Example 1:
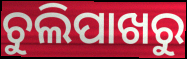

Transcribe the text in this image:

ଚୁଲିପାଖରୁ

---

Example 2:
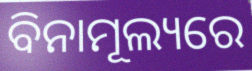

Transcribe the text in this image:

ବିନାମୂଲ୍ୟରେ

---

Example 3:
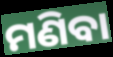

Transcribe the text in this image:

ମଣିବା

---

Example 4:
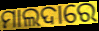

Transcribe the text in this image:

ମାଲଦାରେ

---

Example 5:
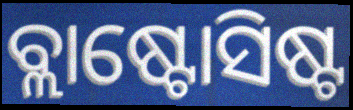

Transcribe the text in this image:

ବ୍ଲାଷ୍ଟୋସିଷ୍ଟ